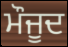
ਮੌਜੂਦ